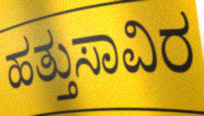
ಹತ್ತುಸಾವಿರ